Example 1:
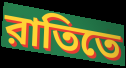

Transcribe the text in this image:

রাতিতে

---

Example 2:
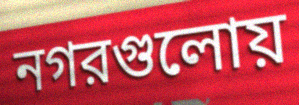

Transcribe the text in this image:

নগরগুলোয়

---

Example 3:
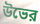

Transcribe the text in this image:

উভের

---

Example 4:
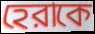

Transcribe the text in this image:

হেরাকে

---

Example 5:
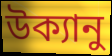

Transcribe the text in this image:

উক্যানু